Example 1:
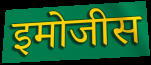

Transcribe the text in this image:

इमोजीस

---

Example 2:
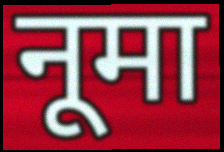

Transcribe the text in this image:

नूमा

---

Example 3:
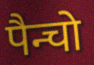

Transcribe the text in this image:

पैन्चो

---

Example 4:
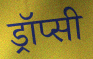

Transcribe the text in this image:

ड्रॉप्सी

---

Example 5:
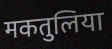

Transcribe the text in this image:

मकतुलिया